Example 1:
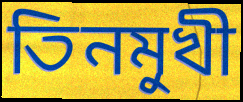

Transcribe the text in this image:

তিনমুখী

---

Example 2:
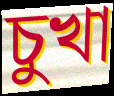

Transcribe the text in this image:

চুখা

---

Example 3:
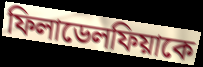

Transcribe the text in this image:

ফিলাডেলফিয়াকে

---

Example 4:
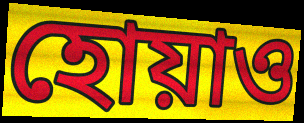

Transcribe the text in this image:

হোয়াও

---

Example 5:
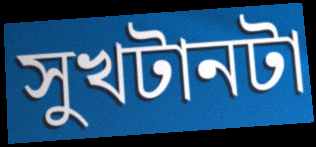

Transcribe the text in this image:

সুখটানটা